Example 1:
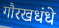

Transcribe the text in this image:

गौरखधंधे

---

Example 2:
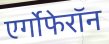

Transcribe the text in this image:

एर्गोफेरॉन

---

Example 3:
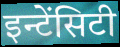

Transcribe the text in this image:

इन्टेंसिटी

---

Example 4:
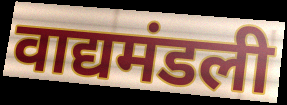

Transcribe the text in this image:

वाद्यमंडली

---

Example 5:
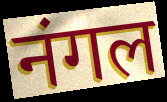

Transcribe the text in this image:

नंगल